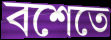
বশেতে